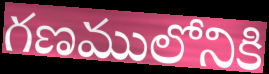
గణములోనికి